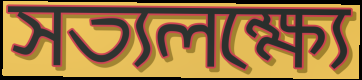
সত্যলক্ষ্যে